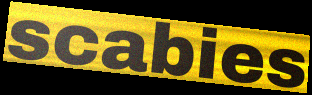
scabies